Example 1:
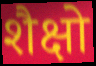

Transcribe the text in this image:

शैक्षो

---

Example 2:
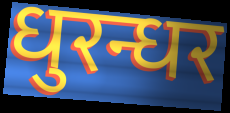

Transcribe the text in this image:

धुरन्धर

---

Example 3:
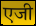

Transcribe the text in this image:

एजी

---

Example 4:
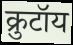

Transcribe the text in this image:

क्रुटॉय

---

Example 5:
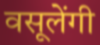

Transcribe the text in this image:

वसूलेंगी